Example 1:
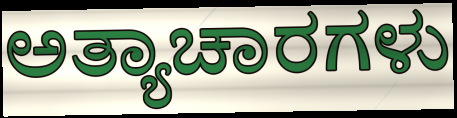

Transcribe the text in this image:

ಅತ್ಯಾಚಾರಗಳು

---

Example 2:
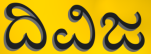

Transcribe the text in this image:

ದಿವಿಜ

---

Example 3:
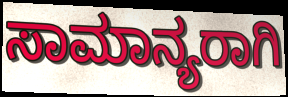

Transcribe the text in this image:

ಸಾಮಾನ್ಯರಾಗಿ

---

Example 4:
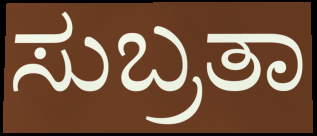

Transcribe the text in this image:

ಸುಬ್ರತಾ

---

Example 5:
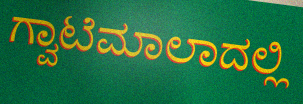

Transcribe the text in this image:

ಗ್ವಾಟೆಮಾಲಾದಲ್ಲಿ